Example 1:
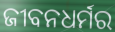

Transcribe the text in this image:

ଜୀବନଧର୍ମର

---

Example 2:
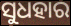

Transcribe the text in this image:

ସୁଧହାର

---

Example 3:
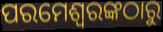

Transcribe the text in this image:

ପରମେଶ୍ଵରଙ୍କଠାରୁ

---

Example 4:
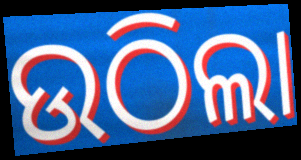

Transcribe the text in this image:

ଉଠିଲା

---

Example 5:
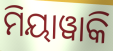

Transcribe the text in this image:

ମିୟାୱାକି